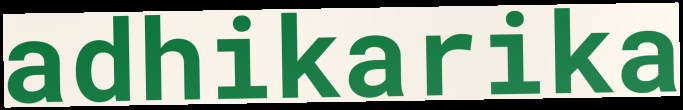
adhikarika